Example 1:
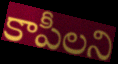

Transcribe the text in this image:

కాపీలని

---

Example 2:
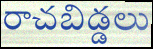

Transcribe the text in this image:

రాచబిడ్డలు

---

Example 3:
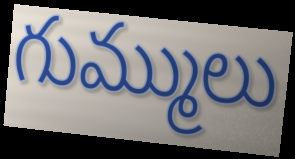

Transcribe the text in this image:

గుమ్ములు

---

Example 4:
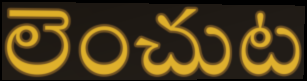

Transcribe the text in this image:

లెంచుట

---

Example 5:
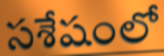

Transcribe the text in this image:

సశేషంలో